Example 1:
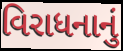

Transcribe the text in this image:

વિરાધનાનું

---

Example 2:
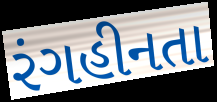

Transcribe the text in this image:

રંગહીનતા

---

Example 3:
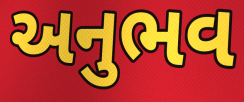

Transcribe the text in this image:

અનુભવ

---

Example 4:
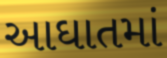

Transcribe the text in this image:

આઘાતમાં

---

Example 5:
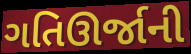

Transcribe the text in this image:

ગતિઊર્જાની